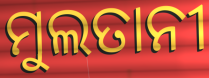
ମୁଲତାନୀ